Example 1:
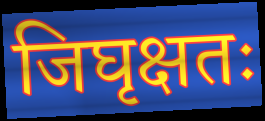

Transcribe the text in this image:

जिघृक्षतः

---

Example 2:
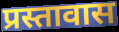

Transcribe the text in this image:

प्रस्तावास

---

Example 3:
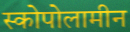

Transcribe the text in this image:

स्कोपोलामीन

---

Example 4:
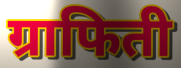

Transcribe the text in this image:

ग्राफिती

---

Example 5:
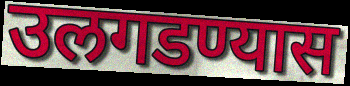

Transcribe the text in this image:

उलगडण्यास